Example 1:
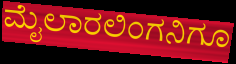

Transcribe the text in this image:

ಮೈಲಾರಲಿಂಗನಿಗೂ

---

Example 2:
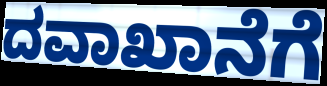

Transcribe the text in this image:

ದವಾಖಾನೆಗೆ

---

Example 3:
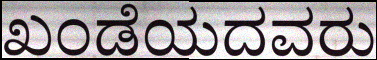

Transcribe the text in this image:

ಖಂಡೆಯದವರು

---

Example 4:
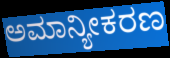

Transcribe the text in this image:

ಅಮಾನ್ಯೀಕರಣ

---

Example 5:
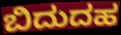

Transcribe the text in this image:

ಬಿದುದಹ